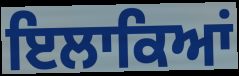
ਇਲਾਕਿਆਂ